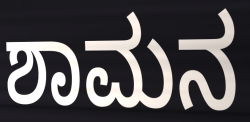
ಶಾಮನ